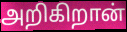
அறிகிறான்